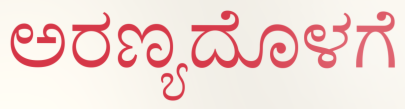
ಅರಣ್ಯದೊಳಗೆ